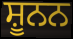
ਸ਼ੂਨਨ